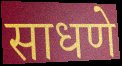
साधणे